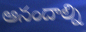
ఆనందాల్ని